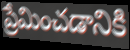
ప్రేమించడానికి